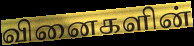
வினைகளின்